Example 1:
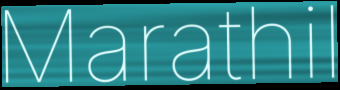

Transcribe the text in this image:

Marathil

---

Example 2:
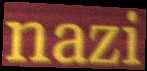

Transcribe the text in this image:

nazi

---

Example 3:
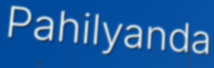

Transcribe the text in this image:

Pahilyanda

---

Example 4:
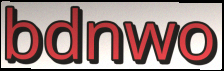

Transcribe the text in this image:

bdnwo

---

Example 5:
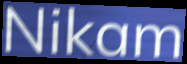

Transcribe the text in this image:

Nikam